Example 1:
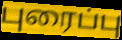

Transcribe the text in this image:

புரைப்பு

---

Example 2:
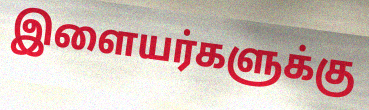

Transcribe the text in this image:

இளையர்களுக்கு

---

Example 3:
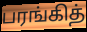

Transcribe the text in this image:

பரங்கித்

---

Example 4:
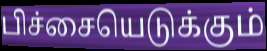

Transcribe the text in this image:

பிச்சையெடுக்கும்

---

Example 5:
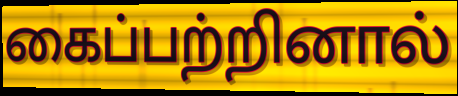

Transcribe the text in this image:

கைப்பற்றினால்